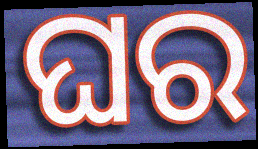
ଘର